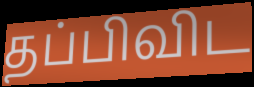
தப்பிவிட